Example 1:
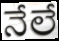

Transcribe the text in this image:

నేలే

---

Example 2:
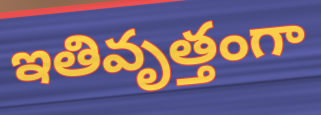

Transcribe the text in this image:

ఇతివృత్తంగా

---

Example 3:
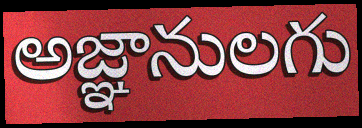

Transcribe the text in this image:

అజ్ఞానులగు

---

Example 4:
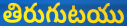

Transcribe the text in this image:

తిరుగుటయు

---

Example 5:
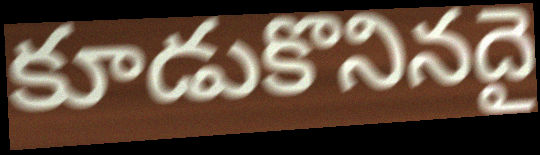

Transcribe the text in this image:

కూడుకొనినదై